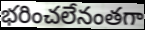
భరించలేనంతగా